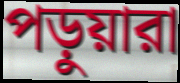
পড়ুয়ারা